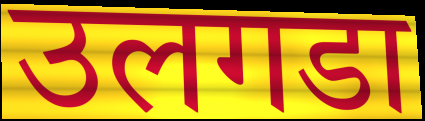
उलगडा